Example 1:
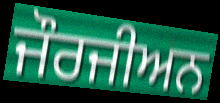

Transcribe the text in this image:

ਜੌਰਜੀਅਨ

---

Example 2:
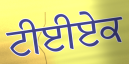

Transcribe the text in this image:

ਟੀਈਏਕ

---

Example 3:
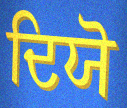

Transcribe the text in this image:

ਦਿਯੋ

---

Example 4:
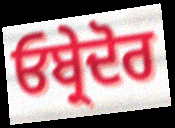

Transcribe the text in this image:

ਓਬ੍ਰੇਦੋਰ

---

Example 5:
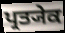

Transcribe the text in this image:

ਪ੍ਰਤ੍ਯੇਕ